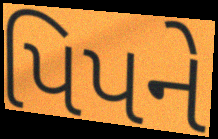
પિપને